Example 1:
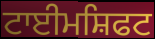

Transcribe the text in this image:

ਟਾਈਮਸ਼ਿਫਟ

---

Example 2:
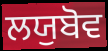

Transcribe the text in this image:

ਲਯੁਬੋਵ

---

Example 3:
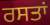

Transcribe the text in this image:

ਰਸਤਾਂ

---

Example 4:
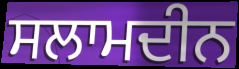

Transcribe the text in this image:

ਸਲਾਮਦੀਨ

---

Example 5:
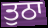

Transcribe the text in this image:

ਤੁਠਾ